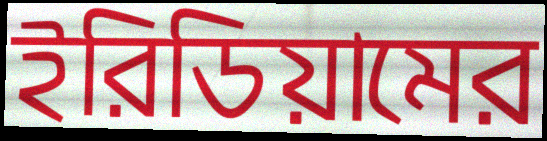
ইরিডিয়ামের